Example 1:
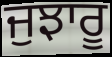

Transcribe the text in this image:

ਜੁਝਾਰੂ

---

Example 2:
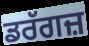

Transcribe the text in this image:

ਡਰੱਗਜ਼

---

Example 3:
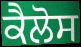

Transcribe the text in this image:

ਕੈਲੋਸ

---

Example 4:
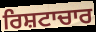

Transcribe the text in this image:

ਰਿਸ਼ਟਾਚਾਰ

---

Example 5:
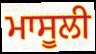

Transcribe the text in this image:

ਮਾਸੂਲੀ